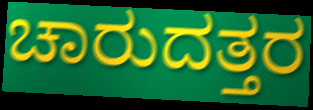
ಚಾರುದತ್ತರ